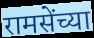
रामसेंच्या